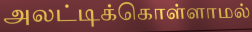
அலட்டிக்கொள்ளாமல்